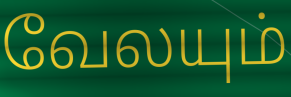
வேலயும்